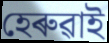
হেৰুৱাই